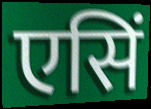
एसिं